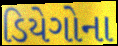
ડિયેગોના